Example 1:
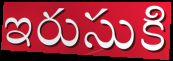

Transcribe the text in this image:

ఇరుసుకి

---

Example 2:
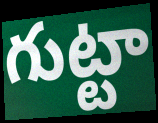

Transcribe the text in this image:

గుట్టా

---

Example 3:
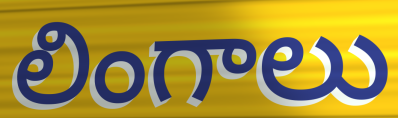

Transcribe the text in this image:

లింగాలు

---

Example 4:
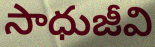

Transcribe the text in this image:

సాధుజీవి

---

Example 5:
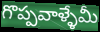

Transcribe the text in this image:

గొప్పవాళ్ళేమీ